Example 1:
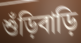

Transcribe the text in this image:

শুঁড়িবাড়ি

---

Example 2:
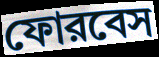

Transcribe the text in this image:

ফোরবেস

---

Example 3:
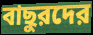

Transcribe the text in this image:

বাছুরদের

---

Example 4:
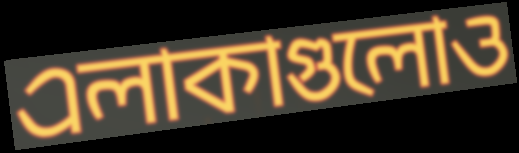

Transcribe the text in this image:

এলাকাগুলোও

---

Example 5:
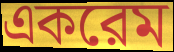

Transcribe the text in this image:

একরেম